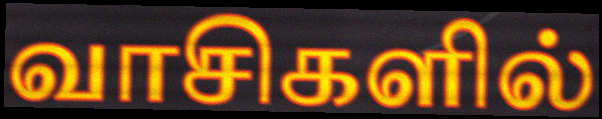
வாசிகளில்